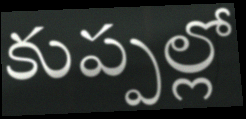
కుప్పల్లో